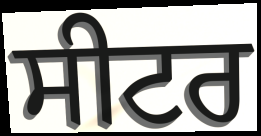
ਸੀਟਰ